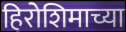
हिरोशिमाच्या